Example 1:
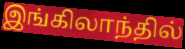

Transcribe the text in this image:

இங்கிலாந்தில்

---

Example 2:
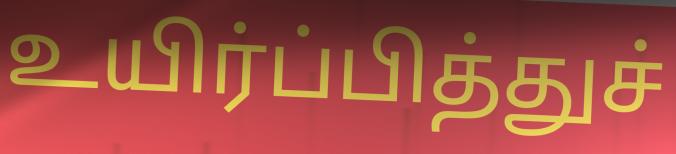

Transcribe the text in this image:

உயிர்ப்பித்துச்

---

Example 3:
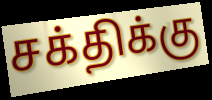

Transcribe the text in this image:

சக்திக்கு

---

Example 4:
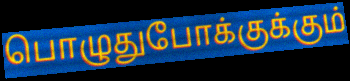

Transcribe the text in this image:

பொழுதுபோக்குக்கும்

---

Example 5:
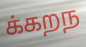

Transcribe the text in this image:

க்கறந